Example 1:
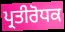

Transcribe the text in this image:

ਪ੍ਰਤੀਰੋਧਕ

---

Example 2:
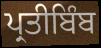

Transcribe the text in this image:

ਪ੍ਰਤੀਬਿੰਬ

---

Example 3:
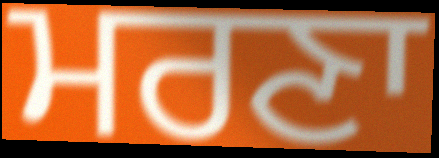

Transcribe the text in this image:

ਮਰਣਾ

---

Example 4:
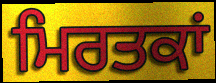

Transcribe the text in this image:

ਮਿਰਤਕਾਂ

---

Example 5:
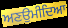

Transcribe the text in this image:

ਅਣਉਮੀਦਿਆ